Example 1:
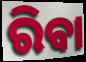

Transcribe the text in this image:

ରିବା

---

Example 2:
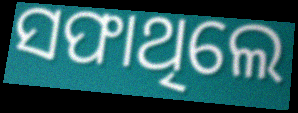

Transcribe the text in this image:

ସଫାଥିଲେ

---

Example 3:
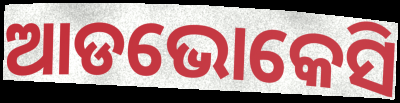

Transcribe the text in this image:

ଆଡଭୋକେସି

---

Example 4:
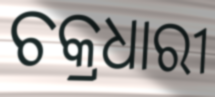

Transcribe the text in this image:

ଚକ୍ରଧାରୀ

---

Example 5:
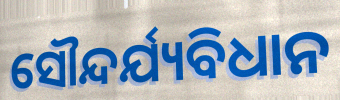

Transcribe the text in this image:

ସୌନ୍ଦର୍ଯ୍ୟବିଧାନ